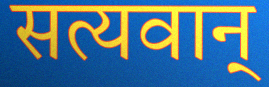
सत्यवान्